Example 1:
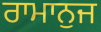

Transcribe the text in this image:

ਰਾਮਾਨੁਜ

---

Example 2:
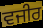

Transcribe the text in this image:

ਵਜੀਰ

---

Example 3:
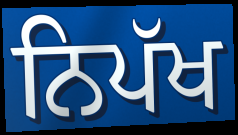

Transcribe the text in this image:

ਨਿਪੱਖ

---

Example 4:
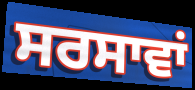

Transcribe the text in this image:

ਸਰਸਾਵਾਂ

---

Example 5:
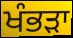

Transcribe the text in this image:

ਖੰਭੜਾ